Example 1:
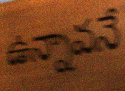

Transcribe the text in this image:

ఉన్నావనే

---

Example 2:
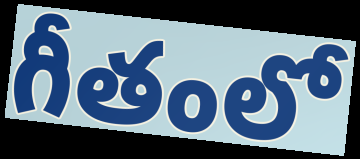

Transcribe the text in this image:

గీతంలో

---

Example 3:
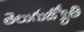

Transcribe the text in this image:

తెలుగుజ్యోతి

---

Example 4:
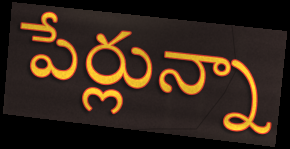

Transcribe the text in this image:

పేర్లున్నా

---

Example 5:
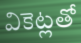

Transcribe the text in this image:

వికెట్లతో